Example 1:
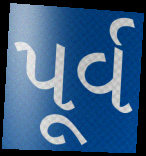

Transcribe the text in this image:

પૂર્વ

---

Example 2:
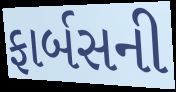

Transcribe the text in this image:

ફાર્બસની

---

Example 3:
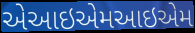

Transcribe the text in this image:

એઆઇએમઆઇએમ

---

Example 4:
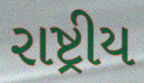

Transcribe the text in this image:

રાષ્ટ્રીય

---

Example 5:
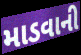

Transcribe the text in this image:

માડવાની